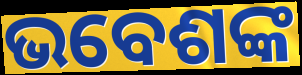
ଭବେଶଙ୍କ